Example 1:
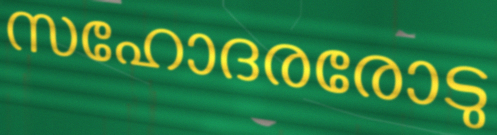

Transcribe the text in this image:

സഹോദരരോടു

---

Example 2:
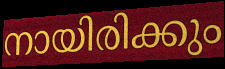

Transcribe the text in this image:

നായിരിക്കും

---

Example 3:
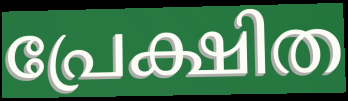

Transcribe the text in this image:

പ്രേക്ഷിത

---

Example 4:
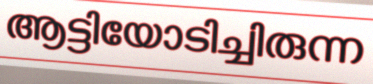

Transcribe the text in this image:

ആട്ടിയോടിച്ചിരുന്ന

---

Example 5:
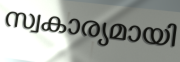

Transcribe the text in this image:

സ്വകാര്യമായി